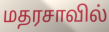
மதரசாவில்